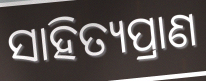
ସାହିତ୍ୟପ୍ରାଣ